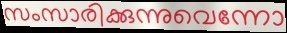
സംസാരിക്കുന്നുവെന്നോ